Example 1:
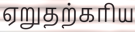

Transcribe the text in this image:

ஏறுதற்கரிய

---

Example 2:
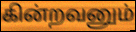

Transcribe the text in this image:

கின்றவனும்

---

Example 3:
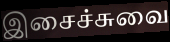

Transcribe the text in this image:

இசைச்சுவை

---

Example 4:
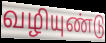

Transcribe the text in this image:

வழியுண்டு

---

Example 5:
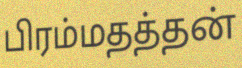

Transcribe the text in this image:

பிரம்மதத்தன்